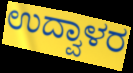
ಉದ್ವಾಳರ